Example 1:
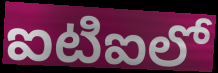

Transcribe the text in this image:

ఐటిఐలో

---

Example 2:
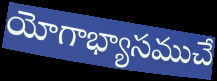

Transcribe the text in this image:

యోగాభ్యాసముచే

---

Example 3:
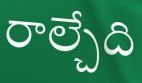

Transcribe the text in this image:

రాల్చేది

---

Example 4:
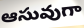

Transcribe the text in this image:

ఆసువుగా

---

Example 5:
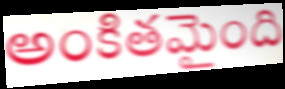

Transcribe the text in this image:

అంకితమైంది